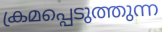
ക്രമപ്പെടുത്തുന്ന